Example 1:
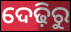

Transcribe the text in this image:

ଦେଢ଼ିରୁ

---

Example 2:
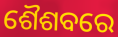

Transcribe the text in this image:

ଶୈଶବରେ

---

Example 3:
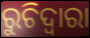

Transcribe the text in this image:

ରୁଚିଦ୍ୱାରା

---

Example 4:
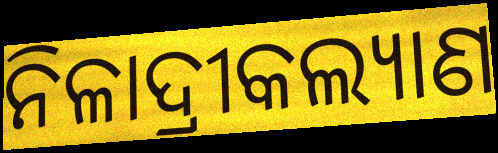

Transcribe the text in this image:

ନିଳାଦ୍ରୀକଲ୍ୟାଣ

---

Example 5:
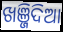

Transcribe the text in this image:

ଖଞ୍ଜିଦିଆ